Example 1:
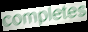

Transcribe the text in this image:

completes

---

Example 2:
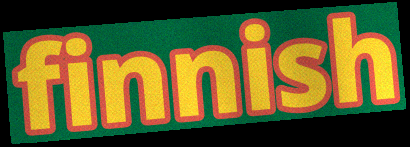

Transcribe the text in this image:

finnish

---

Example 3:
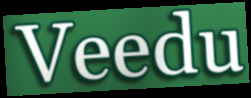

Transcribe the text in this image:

Veedu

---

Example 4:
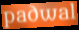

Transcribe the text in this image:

padwal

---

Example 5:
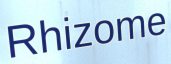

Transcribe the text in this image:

Rhizome